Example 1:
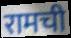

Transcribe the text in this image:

रामची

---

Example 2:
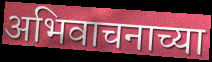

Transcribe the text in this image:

अभिवाचनाच्या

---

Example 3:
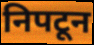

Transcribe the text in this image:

निपटून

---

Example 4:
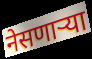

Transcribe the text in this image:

नेसणाऱ्या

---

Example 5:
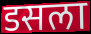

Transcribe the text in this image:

डसला